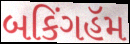
બકિંગહૅમ